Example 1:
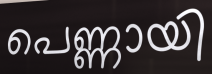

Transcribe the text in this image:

പെണ്ണായി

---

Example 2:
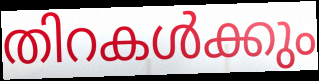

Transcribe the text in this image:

തിറകൾക്കും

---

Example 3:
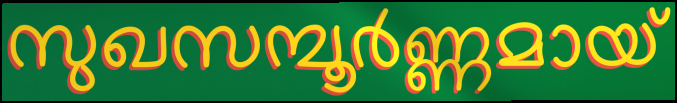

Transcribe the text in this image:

സുഖസമ്പൂർണ്ണമായ്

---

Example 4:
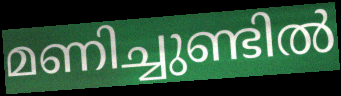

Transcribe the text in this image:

മണിച്ചുണ്ടിൽ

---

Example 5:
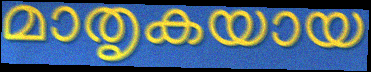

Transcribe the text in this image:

മാതൃകയായ